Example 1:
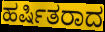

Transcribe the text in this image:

ಹರ್ಷಿತರಾದ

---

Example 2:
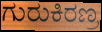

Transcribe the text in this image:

ಗುರುಕಿರಣ್ರ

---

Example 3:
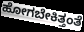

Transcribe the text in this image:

ಹೋಗಬೇಕಿತ್ತಂತೆ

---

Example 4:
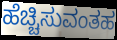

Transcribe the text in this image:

ಹೆಚ್ಚಿಸುವಂತಹ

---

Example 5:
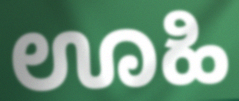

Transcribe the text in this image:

ಊಹಿ